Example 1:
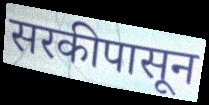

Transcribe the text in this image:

सरकीपासून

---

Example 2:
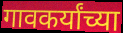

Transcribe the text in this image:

गावकर्यांच्या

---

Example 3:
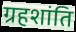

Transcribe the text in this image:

ग्रहशांति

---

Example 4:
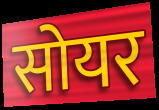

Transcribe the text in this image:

सोयर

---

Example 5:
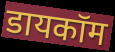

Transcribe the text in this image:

डायकॉम